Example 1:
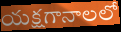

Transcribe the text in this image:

యక్షగానాలలో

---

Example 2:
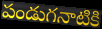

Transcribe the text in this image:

పండుగనాటికి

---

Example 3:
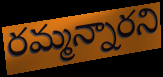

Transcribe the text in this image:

రమ్మన్నారని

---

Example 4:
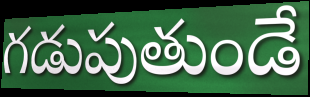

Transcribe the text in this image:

గడుపుతుండే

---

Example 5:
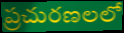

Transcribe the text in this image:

ప్రచురణలలో